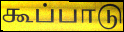
கூப்பாடு